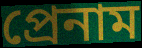
প্রেনাম